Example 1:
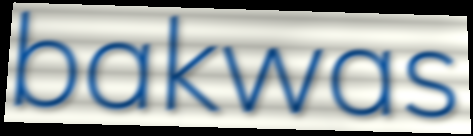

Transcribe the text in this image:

bakwas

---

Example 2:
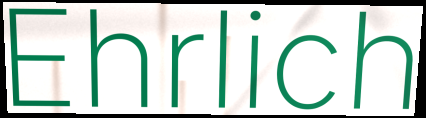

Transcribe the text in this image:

Ehrlich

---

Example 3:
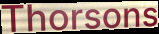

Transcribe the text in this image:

Thorsons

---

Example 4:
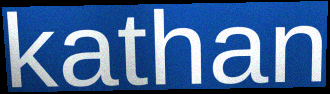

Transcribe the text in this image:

kathan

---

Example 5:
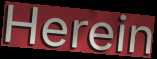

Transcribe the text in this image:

Herein